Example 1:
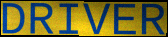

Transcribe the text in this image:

DRIVER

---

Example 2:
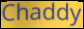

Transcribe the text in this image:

Chaddy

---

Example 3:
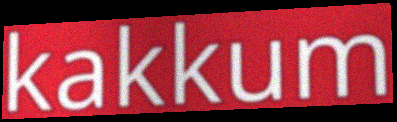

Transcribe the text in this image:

kakkum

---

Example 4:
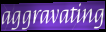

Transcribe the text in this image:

aggravating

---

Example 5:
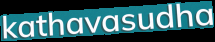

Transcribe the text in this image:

kathavasudha